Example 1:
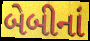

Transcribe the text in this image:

બેબીનાં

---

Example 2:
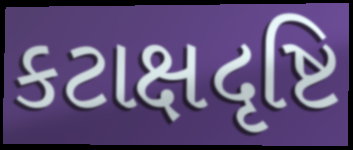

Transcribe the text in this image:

કટાક્ષદૃષ્ટિ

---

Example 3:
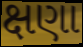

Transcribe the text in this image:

ક્ષણા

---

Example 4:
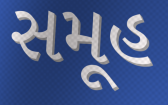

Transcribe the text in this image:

સમૂહ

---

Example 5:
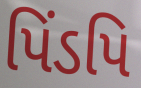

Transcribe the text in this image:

પિંડપિ